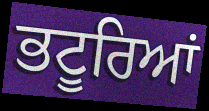
ਭਟੂਰਿਆਂ